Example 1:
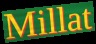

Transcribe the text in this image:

Millat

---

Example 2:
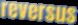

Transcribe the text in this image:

reversus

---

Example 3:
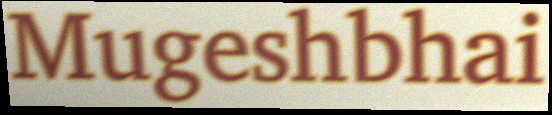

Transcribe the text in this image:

Mugeshbhai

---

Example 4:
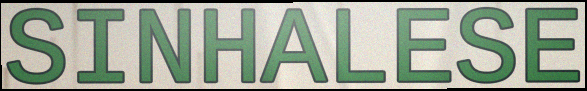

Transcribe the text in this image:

SINHALESE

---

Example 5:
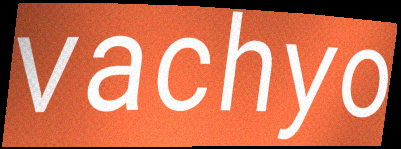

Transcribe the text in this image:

vachyo